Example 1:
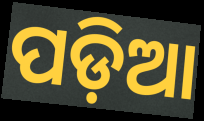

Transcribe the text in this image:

ପଡ଼ିଆ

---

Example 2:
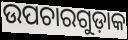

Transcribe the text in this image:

ଉପଚାରଗୁଡ଼ାକ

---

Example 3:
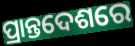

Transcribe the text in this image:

ପ୍ରାନ୍ତଦେଶରେ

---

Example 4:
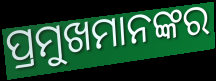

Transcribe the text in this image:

ପ୍ରମୁଖମାନଙ୍କର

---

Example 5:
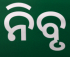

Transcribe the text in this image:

ନିବୃ